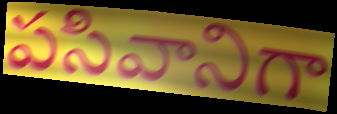
పసివానిగా